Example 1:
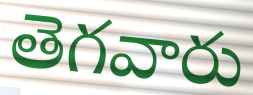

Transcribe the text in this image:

తెగవారు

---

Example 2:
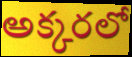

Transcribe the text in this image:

అక్కరలో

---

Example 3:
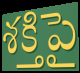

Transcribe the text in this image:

శక్తిపై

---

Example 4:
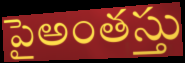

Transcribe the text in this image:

పైఅంతస్తు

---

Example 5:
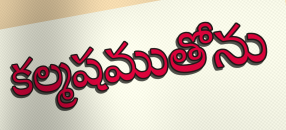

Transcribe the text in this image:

కల్మషముతోను